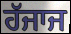
ਹੱਜਾਜ